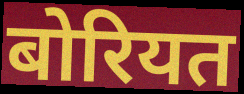
बोरियत